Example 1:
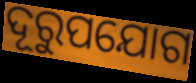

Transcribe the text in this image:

ଦୂରୁପଯୋଗ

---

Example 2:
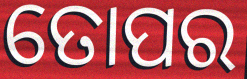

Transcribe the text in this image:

ତୋପର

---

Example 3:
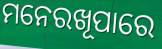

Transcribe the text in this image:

ମନେରଖୂପାରେ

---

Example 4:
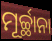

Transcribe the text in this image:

ମୂର୍ଚ୍ଛାନା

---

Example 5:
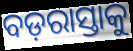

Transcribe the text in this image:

ବଡ଼ରାସ୍ତାକୁ